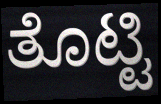
ತೊಟ್ಟಿ